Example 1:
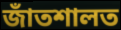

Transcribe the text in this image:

জাঁতশালত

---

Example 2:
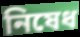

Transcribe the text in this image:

নিষেধ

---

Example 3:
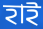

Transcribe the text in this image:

হাই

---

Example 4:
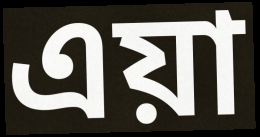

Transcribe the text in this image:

এয়া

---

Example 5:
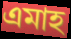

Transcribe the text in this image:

এমাহ